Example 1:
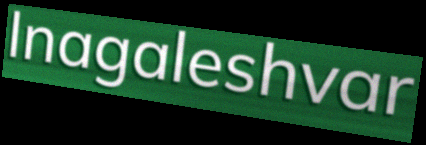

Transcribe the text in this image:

Inagaleshvar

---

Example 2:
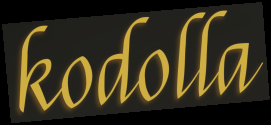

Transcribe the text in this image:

kodolla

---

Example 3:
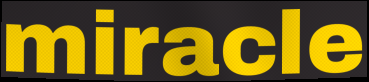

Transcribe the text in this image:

miracle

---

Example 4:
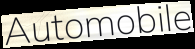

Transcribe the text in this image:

Automobile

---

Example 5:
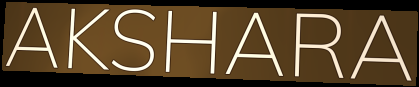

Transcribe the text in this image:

AKSHARA